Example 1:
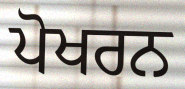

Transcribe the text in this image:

ਪੋਖਰਨ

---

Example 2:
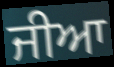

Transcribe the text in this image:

ਜੀਆ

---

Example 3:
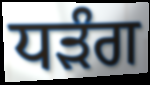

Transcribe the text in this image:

ਧੜੰਗ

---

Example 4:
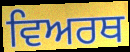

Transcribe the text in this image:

ਵਿਅਰਥ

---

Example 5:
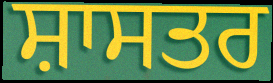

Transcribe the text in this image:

ਸ਼ਾਸਤਰ